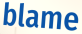
blame